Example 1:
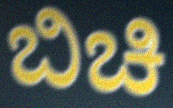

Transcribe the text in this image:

ಬಿಚಿ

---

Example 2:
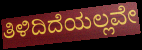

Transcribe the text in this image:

ತಿಳಿದಿದೆಯಲ್ಲವೇ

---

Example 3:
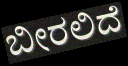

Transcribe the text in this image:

ಬೀರಲಿದೆ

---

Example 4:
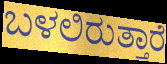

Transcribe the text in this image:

ಬಳಲಿರುತ್ತಾರೆ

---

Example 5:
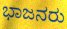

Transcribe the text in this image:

ಭಾಜನರು